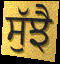
ਸੁੱਝੈ